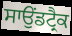
ਸਾਉਂਡਟ੍ਰੈਕ